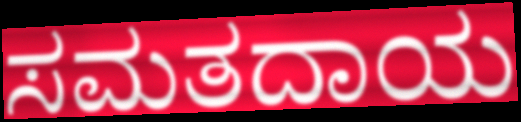
ಸಮತದಾಯ